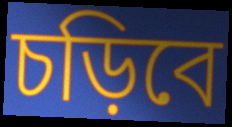
চড়িবে